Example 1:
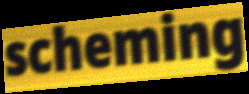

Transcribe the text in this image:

scheming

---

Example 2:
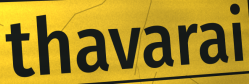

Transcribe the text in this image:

thavarai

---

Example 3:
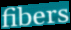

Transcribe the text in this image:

fibers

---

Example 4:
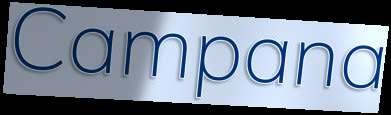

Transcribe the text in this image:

Campana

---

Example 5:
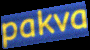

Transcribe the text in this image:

pakva